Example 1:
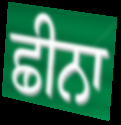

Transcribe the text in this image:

ਛੀਨਾ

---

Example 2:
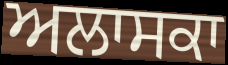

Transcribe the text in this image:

ਅਲਾਸਕਾ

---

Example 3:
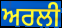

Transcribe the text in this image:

ਅਰਲੀ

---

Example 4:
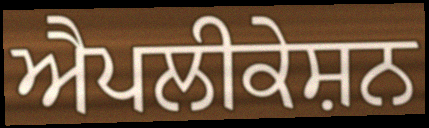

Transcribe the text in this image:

ਐਪਲੀਕੇਸ਼ਨ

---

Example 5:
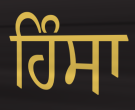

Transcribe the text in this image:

ਹਿੰਸਾ